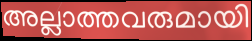
അല്ലാത്തവരുമായി